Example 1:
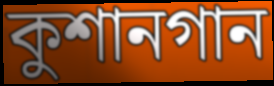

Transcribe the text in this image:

কুশানগান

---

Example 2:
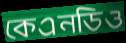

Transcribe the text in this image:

কেএনডিও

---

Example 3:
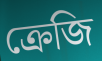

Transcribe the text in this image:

ক্রেজি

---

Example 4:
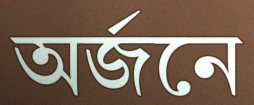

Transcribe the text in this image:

অর্জনে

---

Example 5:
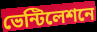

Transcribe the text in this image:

ভেন্টিলেশনে